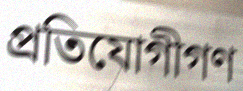
প্রতিযোগীগণ